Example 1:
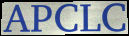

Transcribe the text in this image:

APCLC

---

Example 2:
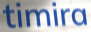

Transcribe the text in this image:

timira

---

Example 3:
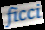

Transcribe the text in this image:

ficci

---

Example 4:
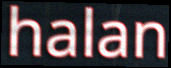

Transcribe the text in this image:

halan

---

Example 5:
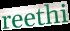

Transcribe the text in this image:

reethi